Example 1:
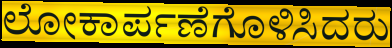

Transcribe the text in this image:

ಲೋಕಾರ್ಪಣೆಗೊಳಿಸಿದರು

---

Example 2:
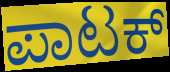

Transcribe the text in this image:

ಪಾಟಕ್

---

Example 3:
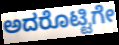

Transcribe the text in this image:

ಅದರೊಟ್ಟಿಗೇ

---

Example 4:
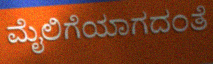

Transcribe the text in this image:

ಮೈಲಿಗೆಯಾಗದಂತೆ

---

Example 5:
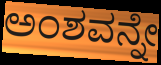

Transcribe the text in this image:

ಅಂಶವನ್ನೇ